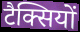
टैक्सियों